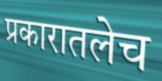
प्रकारातलेच